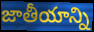
జాతీయాన్ని